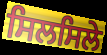
ਸਿਲਸਿਲੇ